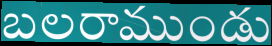
బలరాముండు